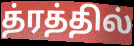
த்ரத்தில்